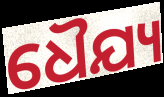
ଧୈଯ୍ୟ